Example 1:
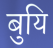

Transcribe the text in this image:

बुयि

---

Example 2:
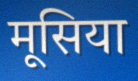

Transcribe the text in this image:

मूसिया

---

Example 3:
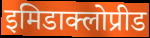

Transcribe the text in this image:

इमिडाक्लोप्रीड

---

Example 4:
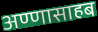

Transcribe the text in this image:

अण्णासाहब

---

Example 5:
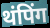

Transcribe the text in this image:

थंपिंग